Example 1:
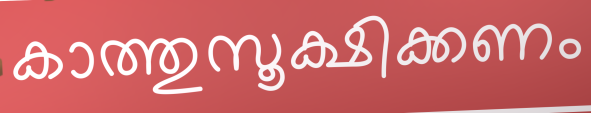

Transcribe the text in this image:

കാത്തുസൂക്ഷിക്കണം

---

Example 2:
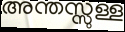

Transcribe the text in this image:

അന്തസ്സുള്ള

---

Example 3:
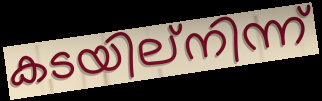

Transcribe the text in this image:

കടയില്നിന്ന്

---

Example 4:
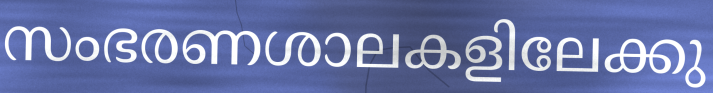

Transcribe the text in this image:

സംഭരണശാലകളിലേക്കു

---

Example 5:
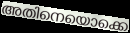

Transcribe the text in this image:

അതിനെയൊക്കെ